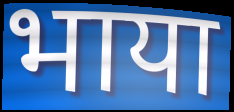
भाया